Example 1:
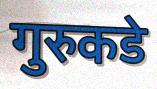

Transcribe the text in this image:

गुरुकडे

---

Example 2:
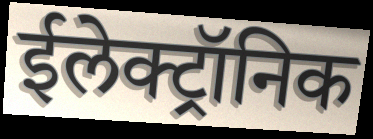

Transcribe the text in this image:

ईलेक्ट्रॉनिक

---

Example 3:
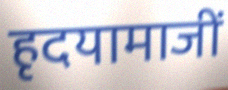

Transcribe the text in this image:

हृदयामाजीं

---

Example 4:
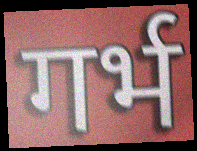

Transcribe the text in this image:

गर्भ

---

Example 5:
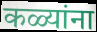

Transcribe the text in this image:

कळ्यांना